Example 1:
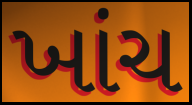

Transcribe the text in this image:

ખાંચ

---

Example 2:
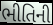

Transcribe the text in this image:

ભીતિની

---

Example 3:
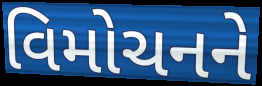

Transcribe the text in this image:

વિમોચનને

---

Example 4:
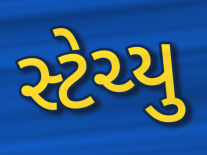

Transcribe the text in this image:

સ્ટેચ્યુ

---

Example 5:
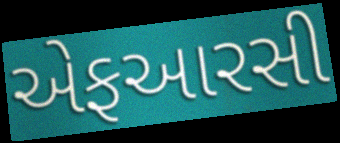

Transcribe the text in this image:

એફઆરસી